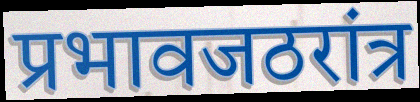
प्रभावजठरांत्र